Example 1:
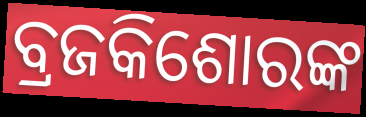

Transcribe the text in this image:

ବ୍ରଜକିଶୋରଙ୍କ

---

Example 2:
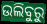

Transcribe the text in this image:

ଉଲିବୁରୁ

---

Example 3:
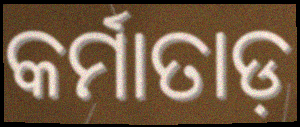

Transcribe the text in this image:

କର୍ମାତାଡ଼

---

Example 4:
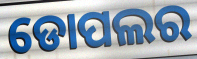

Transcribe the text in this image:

ଡୋପଲର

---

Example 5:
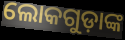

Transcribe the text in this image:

ଲୋକଗୁଡ଼ାଙ୍କ